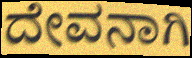
ದೇವನಾಗಿ